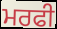
ਮਰਫੀ